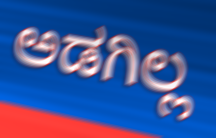
ಅಡಗಿಲ್ಲ